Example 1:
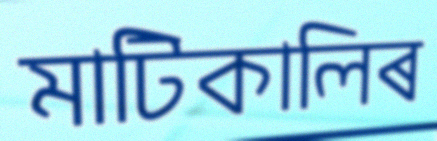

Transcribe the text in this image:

মাটিকালিৰ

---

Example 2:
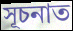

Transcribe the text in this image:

সূচনাত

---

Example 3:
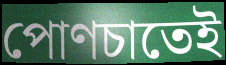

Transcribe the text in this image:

পোণচাতেই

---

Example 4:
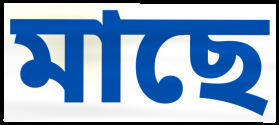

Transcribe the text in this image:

মাছে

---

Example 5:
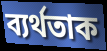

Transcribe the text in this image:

ব্যৰ্থতাক